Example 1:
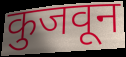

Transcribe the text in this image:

कुजवून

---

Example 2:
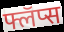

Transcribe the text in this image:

फ्लॅप्स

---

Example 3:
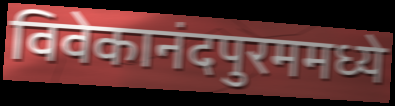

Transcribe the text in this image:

विवेकानंदपुरममध्ये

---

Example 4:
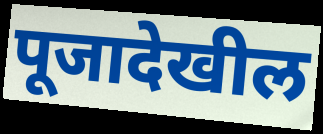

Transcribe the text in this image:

पूजादेखील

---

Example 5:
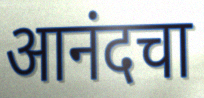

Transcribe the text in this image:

आनंदचा